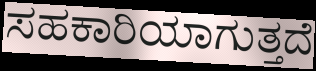
ಸಹಕಾರಿಯಾಗುತ್ತದೆ